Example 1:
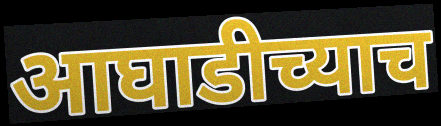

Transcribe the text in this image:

आघाडीच्याच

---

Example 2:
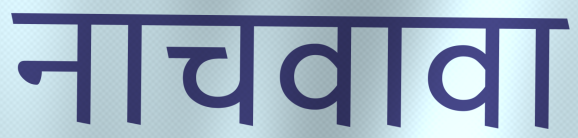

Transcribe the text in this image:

नाचवावा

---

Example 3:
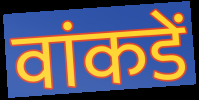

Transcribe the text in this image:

वांकडें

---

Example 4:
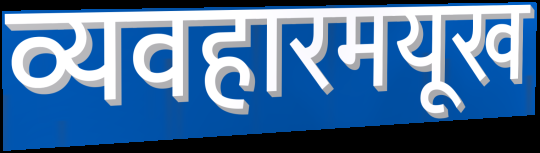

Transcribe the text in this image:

व्यवहारमयूख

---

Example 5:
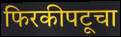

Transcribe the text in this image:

फिरकीपटूचा